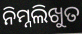
ନିମ୍ନଲିଖୁତ